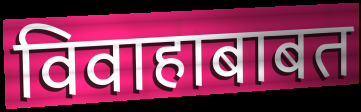
विवाहाबाबत